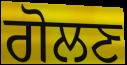
ਗੋਲਣ